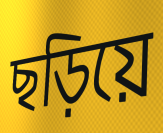
ছড়িয়ে